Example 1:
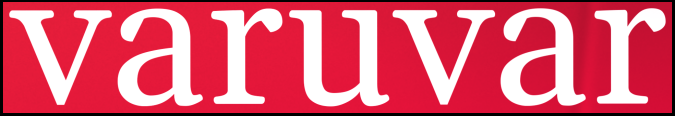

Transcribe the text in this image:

varuvar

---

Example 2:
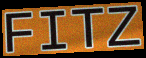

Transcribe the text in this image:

FITZ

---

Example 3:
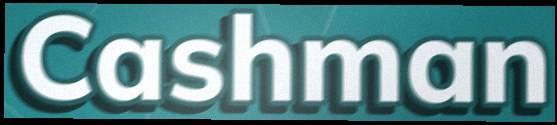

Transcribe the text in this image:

Cashman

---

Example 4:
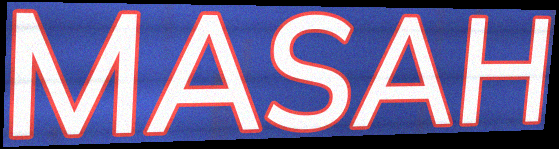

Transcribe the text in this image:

MASAH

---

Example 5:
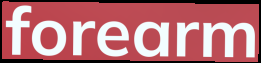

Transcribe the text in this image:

forearm